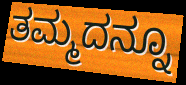
ತಮ್ಮದನ್ನೂ